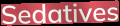
Sedatives